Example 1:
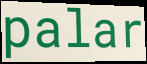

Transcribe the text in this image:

palar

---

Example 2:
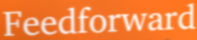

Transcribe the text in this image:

Feedforward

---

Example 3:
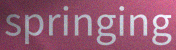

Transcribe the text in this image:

springing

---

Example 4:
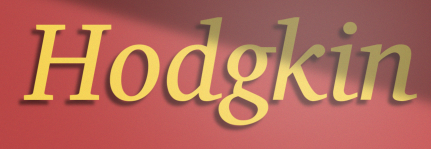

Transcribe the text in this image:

Hodgkin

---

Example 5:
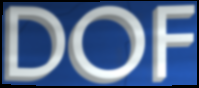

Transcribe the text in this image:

DOF